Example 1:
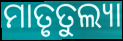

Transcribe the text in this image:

ମାତୃତୁଲ୍ୟା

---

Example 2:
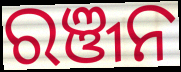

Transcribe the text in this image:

ରଞ୍ଜନ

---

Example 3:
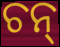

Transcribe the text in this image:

ଚନ୍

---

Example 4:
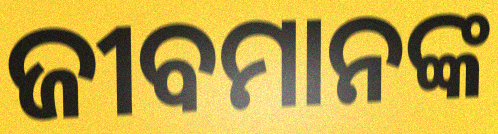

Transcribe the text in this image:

ଜୀବମାନଙ୍କ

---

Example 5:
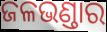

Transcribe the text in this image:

ଜଳଭଣ୍ଡାର